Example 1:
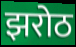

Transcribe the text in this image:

झरोठ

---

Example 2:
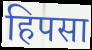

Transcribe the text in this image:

हिपसा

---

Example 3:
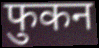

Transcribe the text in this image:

फुकन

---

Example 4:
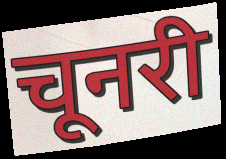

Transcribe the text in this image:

चूनरी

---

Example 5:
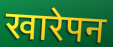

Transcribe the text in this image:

खारेपन